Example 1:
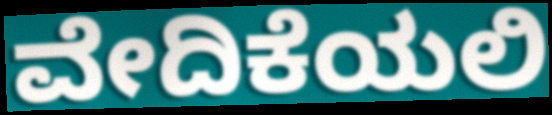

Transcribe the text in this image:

ವೇದಿಕೆಯಲಿ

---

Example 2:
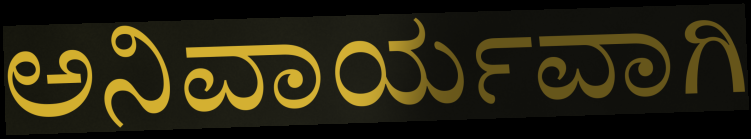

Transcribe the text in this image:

ಅನಿವಾರ್ಯವಾಗಿ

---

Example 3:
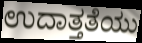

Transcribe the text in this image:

ಉದಾತ್ತತೆಯು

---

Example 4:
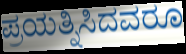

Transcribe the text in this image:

ಪ್ರಯತ್ನಿಸಿದವರೂ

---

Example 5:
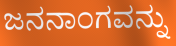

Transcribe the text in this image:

ಜನನಾಂಗವನ್ನು